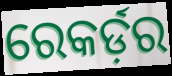
ରେକର୍ଡ଼ର